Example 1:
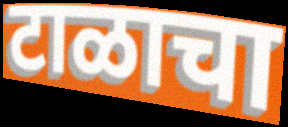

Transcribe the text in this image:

टाळाचा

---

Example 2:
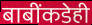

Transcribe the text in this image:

बाबींकडेही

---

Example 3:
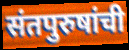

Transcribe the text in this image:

संतपुरुषांची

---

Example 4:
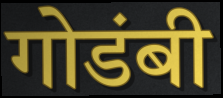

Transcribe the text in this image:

गोडंबी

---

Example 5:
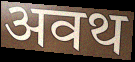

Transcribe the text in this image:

अवथ